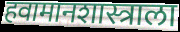
हवामानशास्त्राला